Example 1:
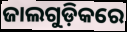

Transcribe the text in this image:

ଜାଲଗୁଡ଼ିକରେ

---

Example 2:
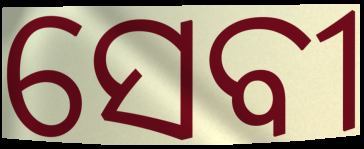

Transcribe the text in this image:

ସେବୀ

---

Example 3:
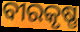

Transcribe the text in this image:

ବୀରକୃଷ୍ଣ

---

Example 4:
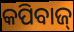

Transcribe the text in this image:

କପିବାଜ୍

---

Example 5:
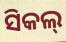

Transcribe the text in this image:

ସିକଲ୍